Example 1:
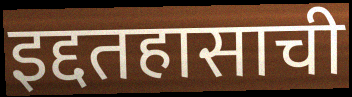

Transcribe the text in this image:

इद्दतहासाची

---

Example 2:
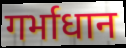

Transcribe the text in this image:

गर्भाधान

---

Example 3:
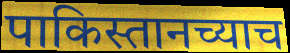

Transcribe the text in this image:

पाकिस्तानच्याच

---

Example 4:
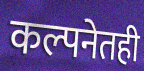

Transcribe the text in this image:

कल्पनेतही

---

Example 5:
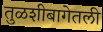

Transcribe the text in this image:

तुळशीबागेतली